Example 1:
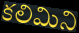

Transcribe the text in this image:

కలిమిని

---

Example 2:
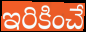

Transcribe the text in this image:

ఇరికించే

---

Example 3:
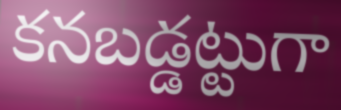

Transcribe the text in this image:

కనబడ్డట్టుగా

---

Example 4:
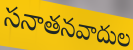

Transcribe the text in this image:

సనాతనవాదుల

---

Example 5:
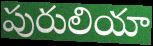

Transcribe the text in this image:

పురులియా